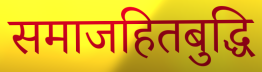
समाजहितबुद्धि